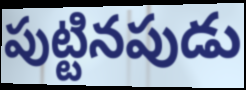
పుట్టినపుడు